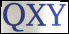
QXY